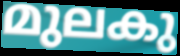
മുലകു